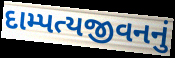
દામ્પત્યજીવનનું